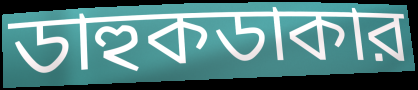
ডাহুকডাকার